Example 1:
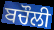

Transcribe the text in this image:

ਬਚੌਲੀ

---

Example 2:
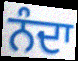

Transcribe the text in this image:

ਨੰਦਾ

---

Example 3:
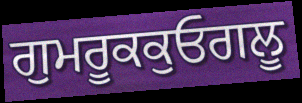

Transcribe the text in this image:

ਗੁਮਰੂਕਕੁਓਗਲੂ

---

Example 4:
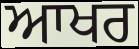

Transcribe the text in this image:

ਆਖਰ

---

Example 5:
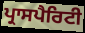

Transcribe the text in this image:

ਪ੍ਰਾਸਪੈਰਿਟੀ